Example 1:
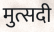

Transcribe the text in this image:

मुत्सदी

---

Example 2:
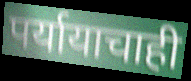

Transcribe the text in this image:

पर्यायाचाही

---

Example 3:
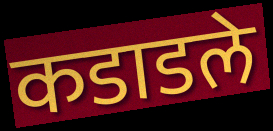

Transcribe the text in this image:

कडाडले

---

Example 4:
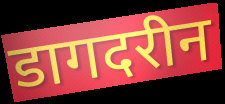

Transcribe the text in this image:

डागदरीन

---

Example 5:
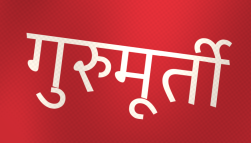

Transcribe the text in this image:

गुरुमूर्ती